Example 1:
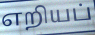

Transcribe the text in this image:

எறியப்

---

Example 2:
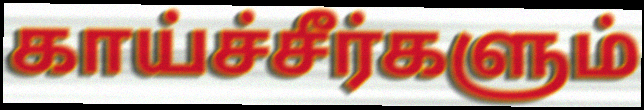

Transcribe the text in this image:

காய்ச்சீர்களும்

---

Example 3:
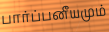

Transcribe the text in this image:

பார்ப்பனீயமும்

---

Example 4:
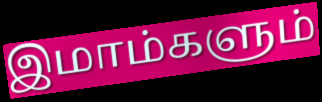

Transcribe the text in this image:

இமாம்களும்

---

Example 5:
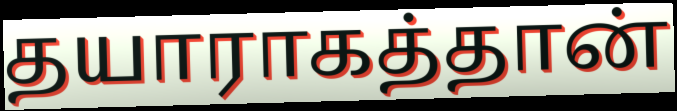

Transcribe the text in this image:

தயாராகத்தான்